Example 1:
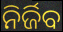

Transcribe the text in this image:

ନିର୍ଜିବ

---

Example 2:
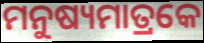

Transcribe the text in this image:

ମନୁଷ୍ୟମାତ୍ରକେ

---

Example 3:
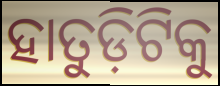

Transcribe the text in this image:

ହାତୁଡ଼ିଟିକୁ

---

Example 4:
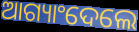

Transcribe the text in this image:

ଆଗ୍ୟାଂଦେଲେ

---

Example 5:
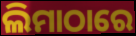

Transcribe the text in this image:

ଲିମାଠାରେ